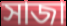
সাজা